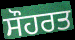
ਸੌਹਰਤ